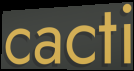
cacti